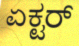
ಏಕ್ಟರ್